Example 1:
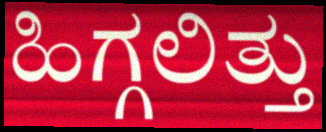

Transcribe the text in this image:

ಹಿಗ್ಗಲಿತ್ತು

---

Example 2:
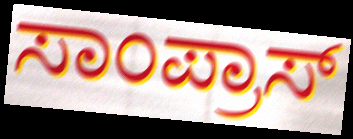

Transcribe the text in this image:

ಸಾಂಪ್ರಾಸ್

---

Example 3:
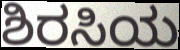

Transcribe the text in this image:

ಶಿರಸಿಯ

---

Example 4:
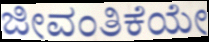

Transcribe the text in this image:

ಜೀವಂತಿಕೆಯೇ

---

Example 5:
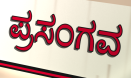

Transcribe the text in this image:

ಪ್ರಸಂಗವ